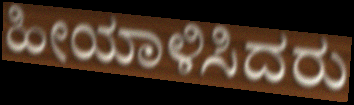
ಹೀಯಾಳಿಸಿದರು